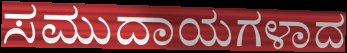
ಸಮುದಾಯಗಳಾದ